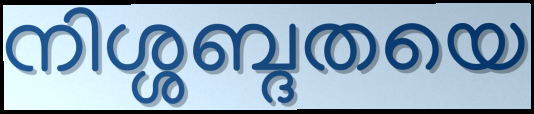
നിശ്ശബ്ദതയെ